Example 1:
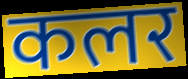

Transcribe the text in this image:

कलर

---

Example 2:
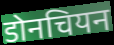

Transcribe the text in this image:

डोनचियन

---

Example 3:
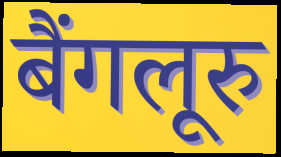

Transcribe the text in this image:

बैंगलूरु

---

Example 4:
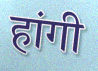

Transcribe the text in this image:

हांगी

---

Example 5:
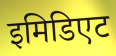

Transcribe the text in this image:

इमिडिएट